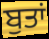
ਬੁਤਾਂ